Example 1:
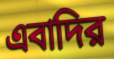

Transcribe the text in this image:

এবাদির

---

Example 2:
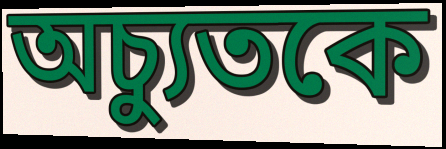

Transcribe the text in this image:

অচ্যুতকে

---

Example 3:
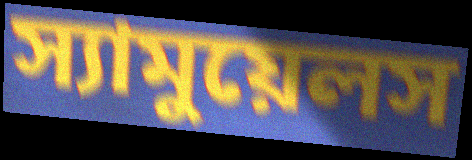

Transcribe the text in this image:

স্যামুয়েলস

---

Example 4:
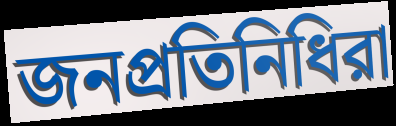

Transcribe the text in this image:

জনপ্রতিনিধিরা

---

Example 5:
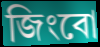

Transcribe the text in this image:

জিংবো